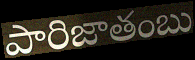
పారిజాతంబు